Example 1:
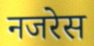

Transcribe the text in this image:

नजरेस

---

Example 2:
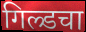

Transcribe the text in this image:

गिल्डचा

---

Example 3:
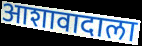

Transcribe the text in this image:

आशावादाला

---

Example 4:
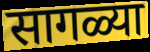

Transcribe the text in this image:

सागळ्या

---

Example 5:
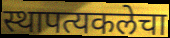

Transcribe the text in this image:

स्थापत्यकलेचा